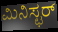
ಮಿನಿಸ್ಟರ್